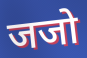
जजो